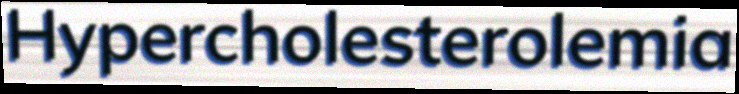
Hypercholesterolemia